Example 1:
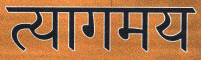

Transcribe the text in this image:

त्यागमय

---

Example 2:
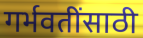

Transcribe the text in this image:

गर्भवतींसाठी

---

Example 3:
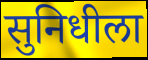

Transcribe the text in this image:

सुनिधीला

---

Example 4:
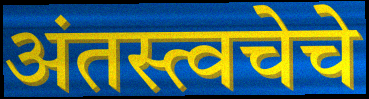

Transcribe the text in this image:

अंतस्त्वचेचे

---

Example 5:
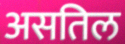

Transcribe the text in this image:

असतिल